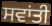
ਸਵਾਂਤੀ